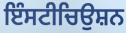
ਇੰਸਟੀਚਿਉਸ਼ਨ